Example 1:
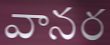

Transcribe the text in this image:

వానర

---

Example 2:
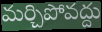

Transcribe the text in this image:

మర్చిపోవద్దు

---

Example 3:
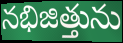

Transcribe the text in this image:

నభిజిత్తును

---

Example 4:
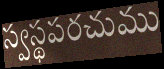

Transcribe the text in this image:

స్వస్థపరచుము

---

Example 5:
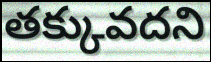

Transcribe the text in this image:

తక్కువదని